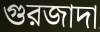
গুরজাদা